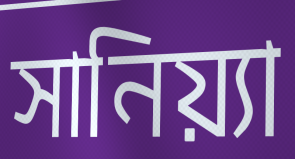
সানিয়্যা